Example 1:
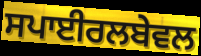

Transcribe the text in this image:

ਸਪਾਈਰਲਬੇਵਲ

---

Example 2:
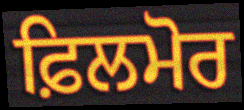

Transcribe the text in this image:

ਫ਼ਿਲਮੋਰ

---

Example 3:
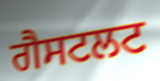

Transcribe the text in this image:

ਗੈਸਟਲਟ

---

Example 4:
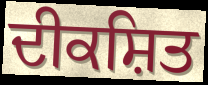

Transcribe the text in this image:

ਦੀਕਸ਼ਿਤ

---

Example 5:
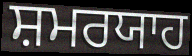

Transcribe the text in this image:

ਸ਼ਮਰਯਾਹ